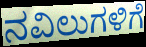
ನವಿಲುಗಳಿಗೆ